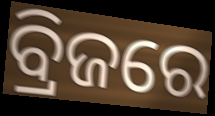
ବ୍ରିଜରେ